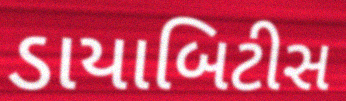
ડાયાબિટીસ